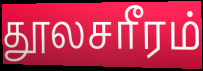
தூலசரீரம்